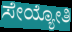
ಸೇಯ್ಯೋತಿ